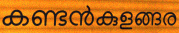
കണ്ടൻകുളങ്ങര